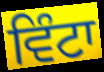
ਵਿੰਟਾ